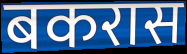
बकरास